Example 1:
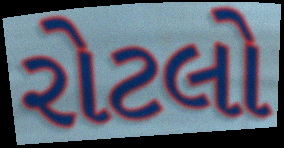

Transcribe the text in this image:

રોટલો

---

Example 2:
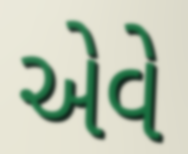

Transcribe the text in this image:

એવે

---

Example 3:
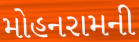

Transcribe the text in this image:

મોહનરામની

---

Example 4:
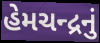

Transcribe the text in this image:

હેમચન્દ્રનું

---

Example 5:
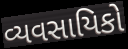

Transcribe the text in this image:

વ્યવસાયિકો